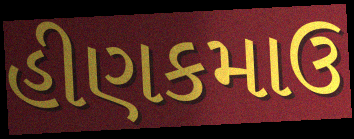
હીણકમાઉ